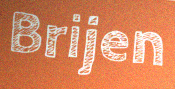
Brijen